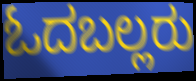
ಓದಬಲ್ಲರು